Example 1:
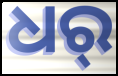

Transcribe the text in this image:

ଧର୍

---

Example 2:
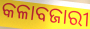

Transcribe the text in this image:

କଳାବଜାରୀ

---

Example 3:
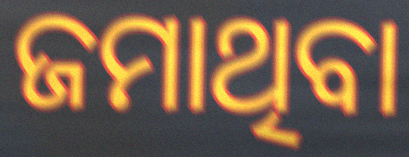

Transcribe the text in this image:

ଜମାଥିବା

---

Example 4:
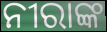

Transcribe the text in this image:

ନୀରାଙ୍କ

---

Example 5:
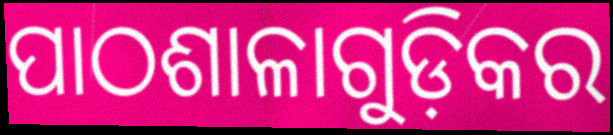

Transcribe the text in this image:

ପାଠଶାଳାଗୁଡ଼ିକର